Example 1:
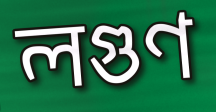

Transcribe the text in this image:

লগুণ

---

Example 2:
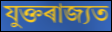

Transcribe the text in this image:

যুক্তৰাজ্যত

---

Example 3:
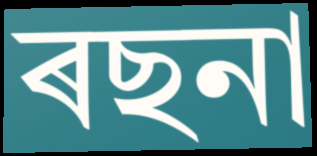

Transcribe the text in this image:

ৰছনা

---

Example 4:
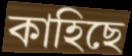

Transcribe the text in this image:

কাহিছে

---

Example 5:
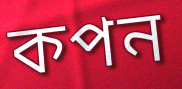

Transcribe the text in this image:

কপন